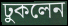
ঢুকলেন